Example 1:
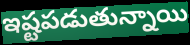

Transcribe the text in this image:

ఇష్టపడుతున్నాయి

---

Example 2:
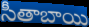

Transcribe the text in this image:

సీతాబాయి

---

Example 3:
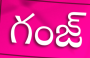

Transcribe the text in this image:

గంజ్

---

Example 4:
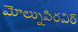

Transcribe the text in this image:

మోల్నుపిరవిర్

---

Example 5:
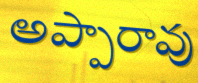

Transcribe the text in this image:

అప్పారావు